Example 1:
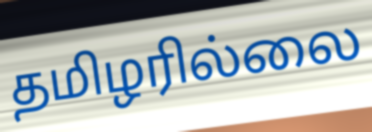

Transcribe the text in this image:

தமிழரில்லை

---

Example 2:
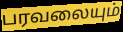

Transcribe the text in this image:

பரவலையும்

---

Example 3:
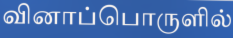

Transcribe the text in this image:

வினாப்பொருளில்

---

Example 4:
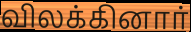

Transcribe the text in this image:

விலக்கினார்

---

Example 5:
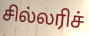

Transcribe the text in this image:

சில்லரிச்